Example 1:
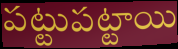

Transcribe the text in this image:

పట్టుపట్టాయి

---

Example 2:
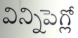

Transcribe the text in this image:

విన్నిపెగ్లో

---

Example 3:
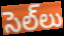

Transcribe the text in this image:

సెల్‌లు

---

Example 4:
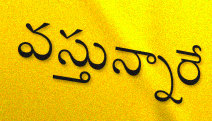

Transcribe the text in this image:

వస్తున్నారే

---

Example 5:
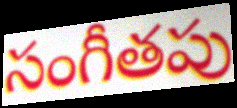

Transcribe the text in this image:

సంగీతపు